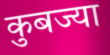
कुबज्या